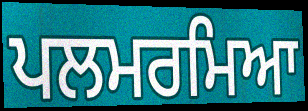
ਪਲਮਰਮਿਆ